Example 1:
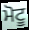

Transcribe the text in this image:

ਮੋਟੂ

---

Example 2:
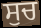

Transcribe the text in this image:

ਸੁਚ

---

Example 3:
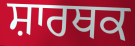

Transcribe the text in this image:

ਸ਼ਾਰਥਕ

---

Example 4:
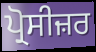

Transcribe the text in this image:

ਪ੍ਰੋਸੀਜ਼ਰ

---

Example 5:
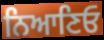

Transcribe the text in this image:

ਨਿਆਣਿਓ